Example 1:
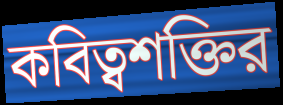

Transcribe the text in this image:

কবিত্বশক্তির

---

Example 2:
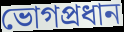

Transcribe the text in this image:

ভোগপ্রধান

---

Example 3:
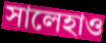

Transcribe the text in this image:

সালেহাও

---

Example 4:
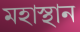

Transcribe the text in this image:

মহাস্থান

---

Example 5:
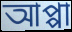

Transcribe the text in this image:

আপ্পা